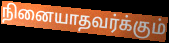
நினையாதவர்க்கும்